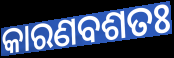
କାରଣବଶତଃ